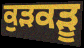
ਕੁੜਕੜੂ